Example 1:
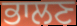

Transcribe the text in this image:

ਭਾਲਣ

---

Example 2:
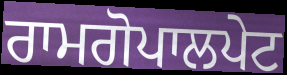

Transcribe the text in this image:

ਰਾਮਗੋਪਾਲਪੇਟ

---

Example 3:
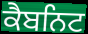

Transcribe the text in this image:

ਕੈਬਨਿਟ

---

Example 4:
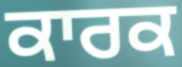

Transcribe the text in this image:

ਕਾਰਕ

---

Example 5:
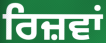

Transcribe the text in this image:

ਰਿਜ਼ਵਾਂ